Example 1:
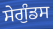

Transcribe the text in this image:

ਸੇਗੁੰਡਸ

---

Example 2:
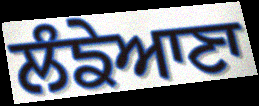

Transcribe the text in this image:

ਲੰਙੇਆਣਾ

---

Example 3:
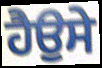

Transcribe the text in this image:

ਹੈਉਸੇ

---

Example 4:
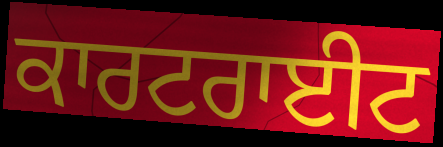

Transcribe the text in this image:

ਕਾਰਟਰਾਈਟ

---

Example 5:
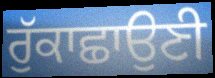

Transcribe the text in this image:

ਰੁੱਕਾਛਾਉਣੀ